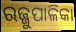
ଋଜ୍ଜୁପାଳିକା